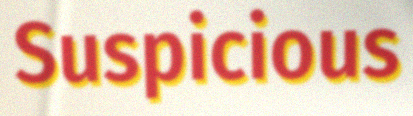
Suspicious